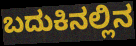
ಬದುಕಿನಲ್ಲಿನ